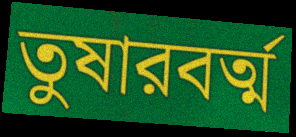
তুষারবর্ত্ম